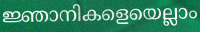
ജ്ഞാനികളെയെല്ലാം